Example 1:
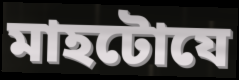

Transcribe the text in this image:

মাহটোযে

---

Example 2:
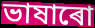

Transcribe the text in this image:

ভাষাৰো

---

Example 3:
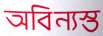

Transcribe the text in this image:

অবিন্যস্ত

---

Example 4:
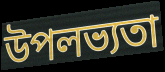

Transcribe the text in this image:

উপলভ্যতা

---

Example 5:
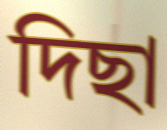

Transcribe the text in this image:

দিছা